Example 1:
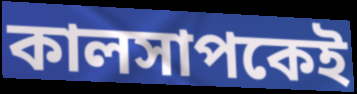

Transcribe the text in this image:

কালসাপকেই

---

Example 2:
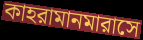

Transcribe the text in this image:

কাহরামানমারাসে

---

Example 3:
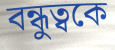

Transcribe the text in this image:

বন্ধুত্বকে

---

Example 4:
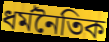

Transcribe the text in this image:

ধর্মনৈতিক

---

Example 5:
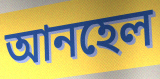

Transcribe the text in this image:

আনহেল